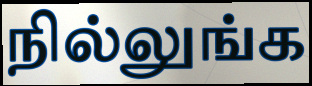
நில்லுங்க